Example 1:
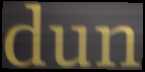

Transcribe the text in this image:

dun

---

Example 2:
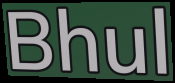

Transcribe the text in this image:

Bhul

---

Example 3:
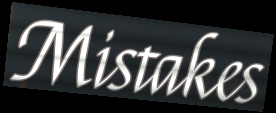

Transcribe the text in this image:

Mistakes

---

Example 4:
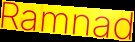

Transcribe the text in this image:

Ramnad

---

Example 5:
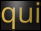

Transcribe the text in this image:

qui